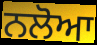
ਨਲੋਆ